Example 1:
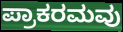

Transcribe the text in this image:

ಪ್ರಾಕರಮವು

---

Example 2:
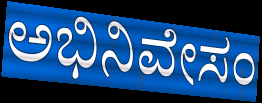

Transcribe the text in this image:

ಅಭಿನಿವೇಸಂ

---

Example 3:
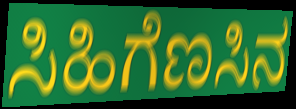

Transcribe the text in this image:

ಸಿಹಿಗೆಣಸಿನ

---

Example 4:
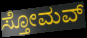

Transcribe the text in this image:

ಸ್ತೋಮವ್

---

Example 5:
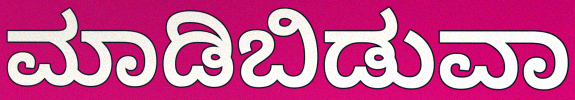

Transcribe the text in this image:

ಮಾಡಿಬಿಡುವಾ